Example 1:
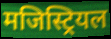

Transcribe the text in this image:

मजिस्ट्रियल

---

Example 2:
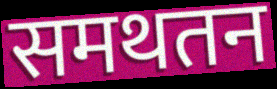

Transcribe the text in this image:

समथतन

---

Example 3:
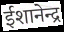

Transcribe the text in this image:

ईशानेन्द्र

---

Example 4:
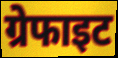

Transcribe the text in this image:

ग्रेफाइट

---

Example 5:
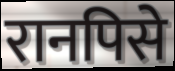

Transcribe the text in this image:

रानपिसे